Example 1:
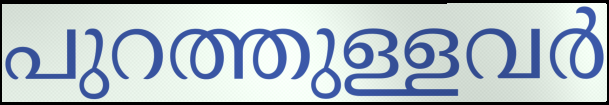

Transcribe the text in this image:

പുറത്തുള്ളവർ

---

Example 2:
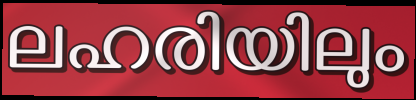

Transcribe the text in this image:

ലഹരിയിലും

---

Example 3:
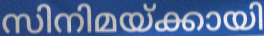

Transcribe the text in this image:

സിനിമയ്ക്കായി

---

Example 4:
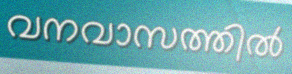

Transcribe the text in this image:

വനവാസത്തിൽ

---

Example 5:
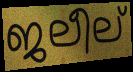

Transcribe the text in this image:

ജലീല്